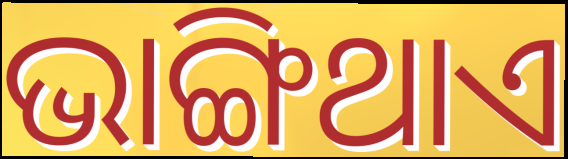
ଭାଙ୍ଗିଥାଏ